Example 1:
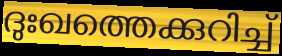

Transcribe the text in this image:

ദുഃഖത്തെക്കുറിച്ച്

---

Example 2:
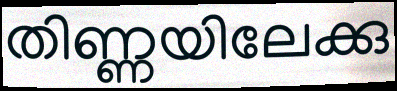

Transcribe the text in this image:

തിണ്ണയിലേക്കു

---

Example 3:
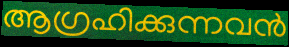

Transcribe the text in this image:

ആഗ്രഹിക്കുന്നവൻ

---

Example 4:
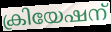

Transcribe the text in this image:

ക്രിയേഷന്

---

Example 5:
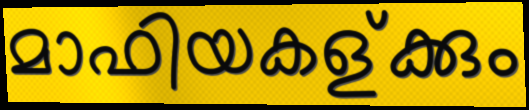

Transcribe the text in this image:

മാഫിയകള്ക്കും